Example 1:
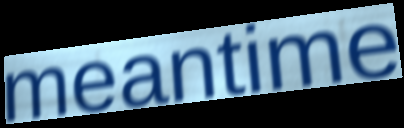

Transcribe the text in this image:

meantime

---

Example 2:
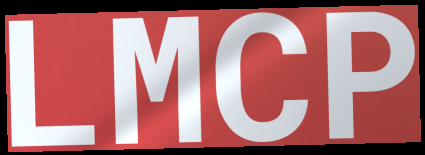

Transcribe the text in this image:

LMCP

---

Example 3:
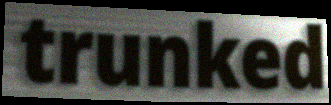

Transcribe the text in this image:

trunked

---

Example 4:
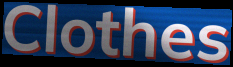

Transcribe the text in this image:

Clothes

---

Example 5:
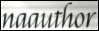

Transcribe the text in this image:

naauthor